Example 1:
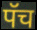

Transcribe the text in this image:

पॅच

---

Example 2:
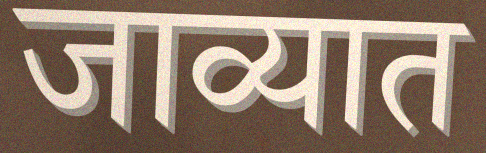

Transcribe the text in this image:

जाव्यात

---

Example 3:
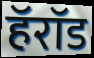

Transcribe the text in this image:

हॅरॉड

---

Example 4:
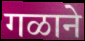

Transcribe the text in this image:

गळाने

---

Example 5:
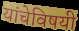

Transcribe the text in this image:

यांचेविषयी